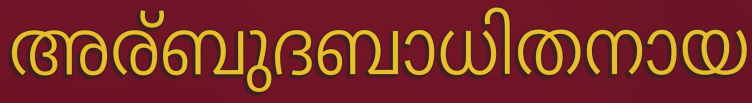
അര്ബുദബാധിതനായ